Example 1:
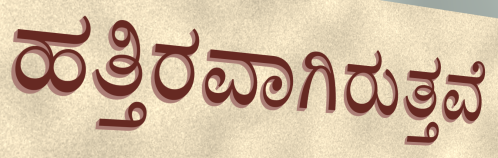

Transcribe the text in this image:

ಹತ್ತಿರವಾಗಿರುತ್ತವೆ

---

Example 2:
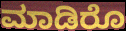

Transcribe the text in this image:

ಮಾಡಿರೊ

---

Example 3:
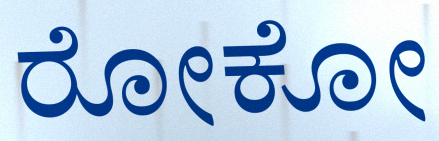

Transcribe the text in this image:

ರೋಕೋ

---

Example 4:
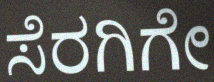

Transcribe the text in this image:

ಸೆರಗಿಗೇ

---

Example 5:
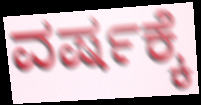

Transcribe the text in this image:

ವರ್ಷಕ್ಕೆ